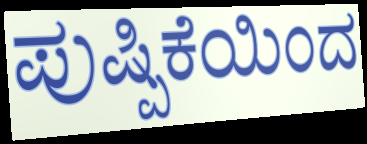
ಪುಷ್ಪಿಕೆಯಿಂದ